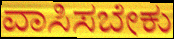
ವಾಸಿಸಬೇಕು